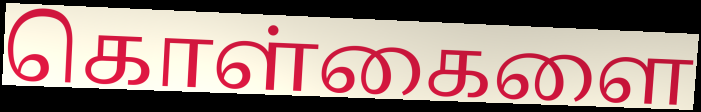
கொள்கைளை